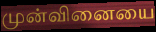
முன்வினையை